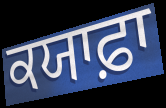
ਕਯਾਫ਼ਾ